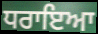
ਧਰਾਇਆ